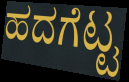
ಹದಗೆಟ್ಟ